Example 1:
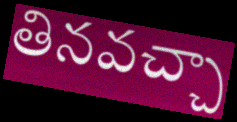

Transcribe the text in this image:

తినవచ్చా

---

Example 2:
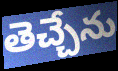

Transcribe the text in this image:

తెచ్చేను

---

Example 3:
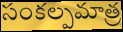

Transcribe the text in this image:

సంకల్పమాత్ర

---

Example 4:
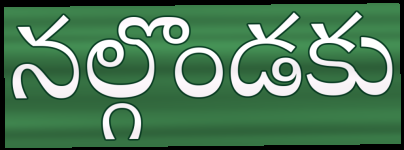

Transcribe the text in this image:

నల్గొండకు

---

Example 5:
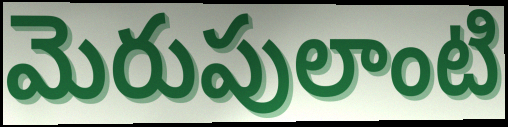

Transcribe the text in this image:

మెరుపులాంటి